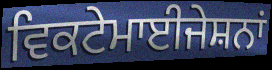
ਵਿਕਟੇਮਾਈਜੇਸ਼ਨਾਂ